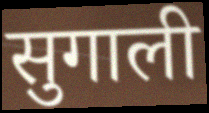
सुगाली